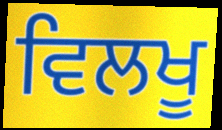
ਵਿਲਖੂ